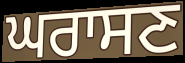
ਘਰਾਸਣ